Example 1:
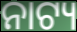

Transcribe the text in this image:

ନାଟ୍ୟ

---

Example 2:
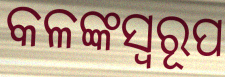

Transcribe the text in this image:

କଳଙ୍କସ୍ୱରୂପ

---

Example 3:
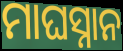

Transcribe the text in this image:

ମାଘସ୍ନାନ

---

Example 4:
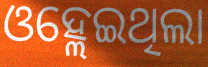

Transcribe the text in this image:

ଓହ୍ଲେଇଥିଲା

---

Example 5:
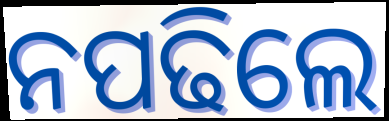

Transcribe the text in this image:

ନପଢିଲେ